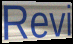
Revi